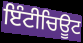
ਇੰਟੀਚਿਊਟ